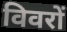
विवरों